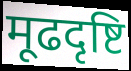
मूढदृष्टि